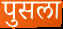
पुसला